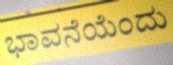
ಭಾವನೆಯೆಂದು